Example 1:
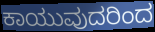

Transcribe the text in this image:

ಕಾಯುವುದರಿಂದ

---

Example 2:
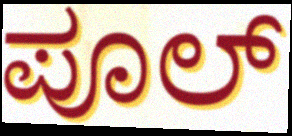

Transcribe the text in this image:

ಪೂಲ್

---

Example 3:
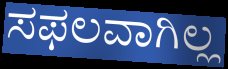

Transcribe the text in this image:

ಸಫಲವಾಗಿಲ್ಲ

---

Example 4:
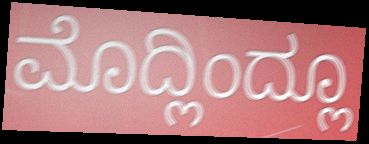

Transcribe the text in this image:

ಮೊದ್ಲಿಂದ್ಲೂ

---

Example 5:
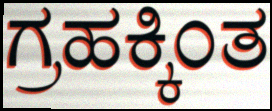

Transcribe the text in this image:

ಗ್ರಹಕ್ಕಿಂತ